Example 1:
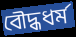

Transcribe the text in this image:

বৌদ্ধধৰ্ম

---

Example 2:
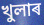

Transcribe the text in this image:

খুলাৰ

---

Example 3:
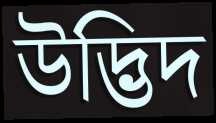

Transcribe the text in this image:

উদ্ভিদ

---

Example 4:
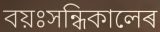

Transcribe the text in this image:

বয়ঃসন্ধিকালেৰ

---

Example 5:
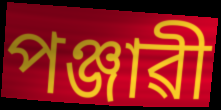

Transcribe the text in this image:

পঞ্জাৱী